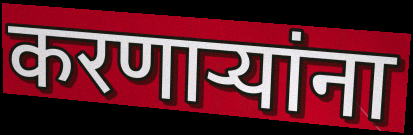
करणार्‍यांना